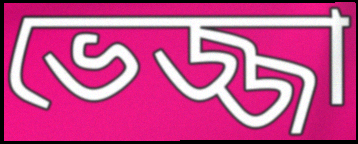
ভেজ্জা